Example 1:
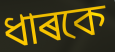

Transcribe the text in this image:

ধাৰকে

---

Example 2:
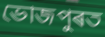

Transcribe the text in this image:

ভোজপুৰত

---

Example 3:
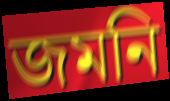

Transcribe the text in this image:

জমনি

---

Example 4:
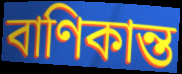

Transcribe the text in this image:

বাণিকান্ত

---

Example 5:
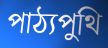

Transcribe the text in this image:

পাঠ্যপুথি